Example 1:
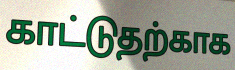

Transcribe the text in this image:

காட்டுதற்காக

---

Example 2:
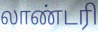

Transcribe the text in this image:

லாண்டரி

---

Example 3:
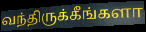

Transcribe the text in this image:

வந்திருக்கீங்களா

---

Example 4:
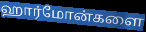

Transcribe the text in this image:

ஹார்மோன்களை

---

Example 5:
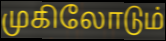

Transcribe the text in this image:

முகிலோடும்